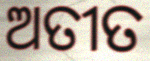
ଅତୀତ